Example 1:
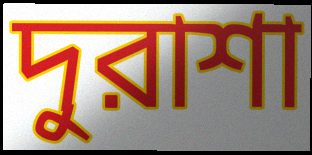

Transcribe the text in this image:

দুরাশা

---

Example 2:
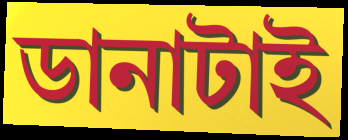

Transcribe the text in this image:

ডানাটাই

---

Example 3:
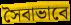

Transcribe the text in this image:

সৈবাভাবে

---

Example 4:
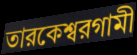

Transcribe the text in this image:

তারকেশ্বরগামী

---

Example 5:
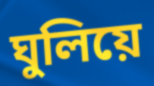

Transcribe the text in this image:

ঘুলিয়ে